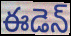
ఈడెన్